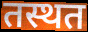
तस्थत